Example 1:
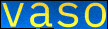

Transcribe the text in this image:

vaso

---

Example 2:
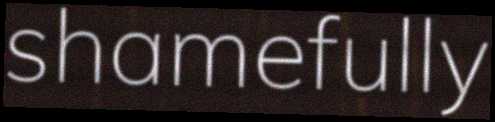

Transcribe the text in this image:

shamefully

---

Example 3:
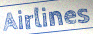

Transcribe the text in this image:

Airlines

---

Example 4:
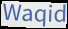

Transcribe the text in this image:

Waqid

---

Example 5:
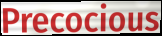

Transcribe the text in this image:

Precocious